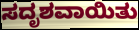
ಸದೃಶವಾಯಿತು